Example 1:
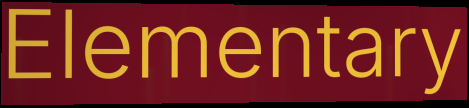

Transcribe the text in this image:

Elementary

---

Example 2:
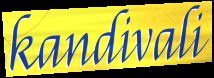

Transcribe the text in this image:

kandivali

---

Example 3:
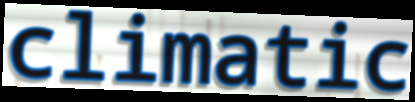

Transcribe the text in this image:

climatic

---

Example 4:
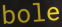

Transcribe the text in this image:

bole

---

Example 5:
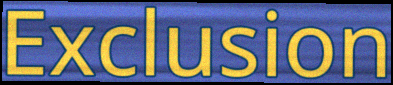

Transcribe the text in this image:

Exclusion